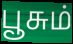
பூசும்